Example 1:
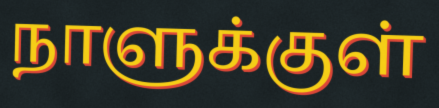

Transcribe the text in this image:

நாளுக்குள்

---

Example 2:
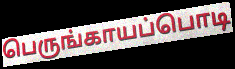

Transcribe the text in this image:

பெருங்காயப்பொடி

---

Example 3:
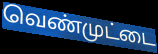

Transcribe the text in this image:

வெண்முட்டை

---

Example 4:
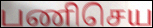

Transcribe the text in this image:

பணிசெய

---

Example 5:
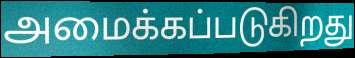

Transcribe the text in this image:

அமைக்கப்படுகிறது